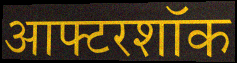
आफ्टरशॉक